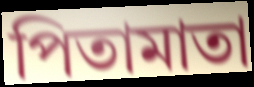
পিতামাতা